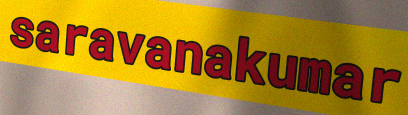
saravanakumar